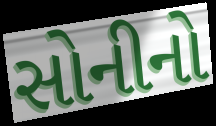
સોનીનો